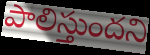
పాలిస్తుందని